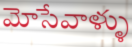
మోసేవాళ్ళు